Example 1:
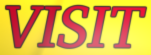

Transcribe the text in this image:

VISIT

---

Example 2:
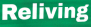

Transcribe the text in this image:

Reliving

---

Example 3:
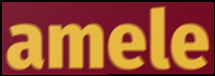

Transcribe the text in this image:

amele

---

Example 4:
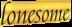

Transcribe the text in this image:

lonesome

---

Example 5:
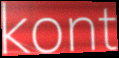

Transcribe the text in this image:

kont